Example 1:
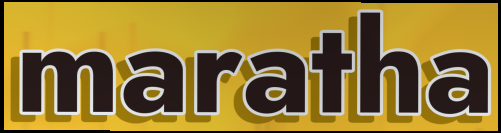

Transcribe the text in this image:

maratha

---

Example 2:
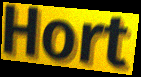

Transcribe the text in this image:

Hort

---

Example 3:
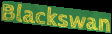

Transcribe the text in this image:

Blackswan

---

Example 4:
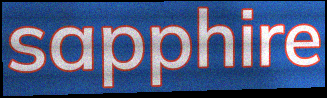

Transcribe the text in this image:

sapphire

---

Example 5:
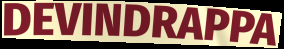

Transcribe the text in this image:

DEVINDRAPPA